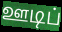
ஊடிப்